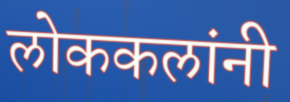
लोककलांनी